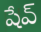
షేవ్